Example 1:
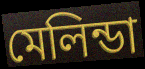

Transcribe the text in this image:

মেলিন্ডা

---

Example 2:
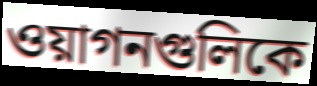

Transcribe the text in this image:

ওয়াগনগুলিকে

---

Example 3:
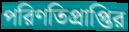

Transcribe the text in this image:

পরিণতিপ্রাপ্তির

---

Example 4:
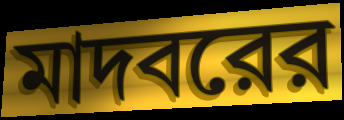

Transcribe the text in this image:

মাদবরের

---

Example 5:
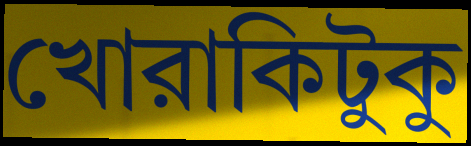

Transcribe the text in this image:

খোরাকিটুকু